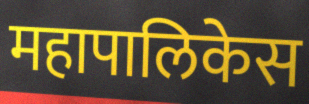
महापालिकेस